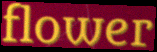
flower